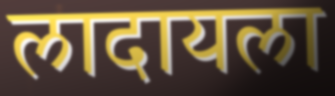
लादायला